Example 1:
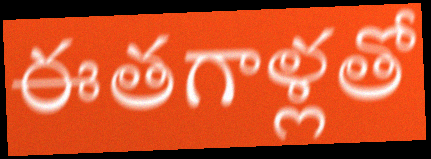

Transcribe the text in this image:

ఈతగాళ్లతో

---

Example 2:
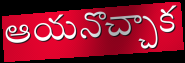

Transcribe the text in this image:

ఆయనొచ్చాక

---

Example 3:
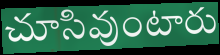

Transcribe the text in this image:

చూసివుంటారు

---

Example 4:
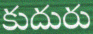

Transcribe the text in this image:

కుదురు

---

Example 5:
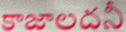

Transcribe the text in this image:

కాజాలదనీ